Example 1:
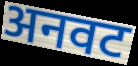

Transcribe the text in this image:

अनवट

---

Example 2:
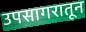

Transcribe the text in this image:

उपसागरातून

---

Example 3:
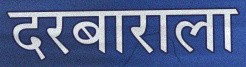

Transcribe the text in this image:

दरबाराला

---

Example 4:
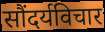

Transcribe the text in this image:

सौंदर्यविचार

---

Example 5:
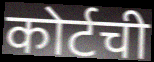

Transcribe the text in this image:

कोर्टची